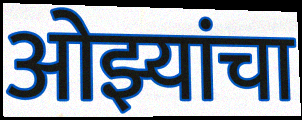
ओझ्यांचा